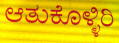
ಆತುಕೊಳ್ಳಿರಿ